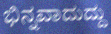
ಭಿನ್ನವಾದುದ್ದು